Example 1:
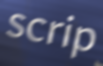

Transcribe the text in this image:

scrip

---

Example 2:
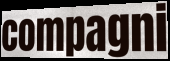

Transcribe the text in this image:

compagni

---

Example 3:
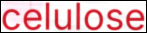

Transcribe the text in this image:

celulose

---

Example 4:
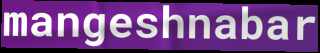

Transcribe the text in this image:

mangeshnabar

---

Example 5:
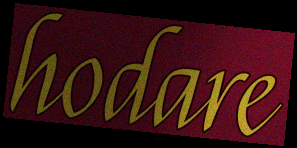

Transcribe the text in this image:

hodare